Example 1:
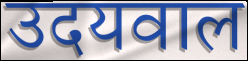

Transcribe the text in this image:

उदयवाल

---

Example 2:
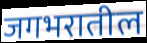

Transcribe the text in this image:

जगभरातील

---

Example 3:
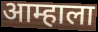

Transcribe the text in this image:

आम्हाला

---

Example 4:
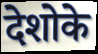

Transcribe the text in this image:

देशोके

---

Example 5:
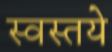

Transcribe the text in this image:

स्वस्तये